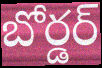
బోర్డర్